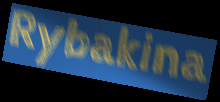
Rybakina